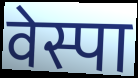
वेस्‍पा